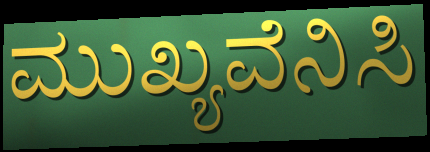
ಮುಖ್ಯವೆನಿಸಿ